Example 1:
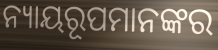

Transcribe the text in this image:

ନ୍ୟାୟରୂପମାନଙ୍କର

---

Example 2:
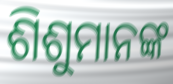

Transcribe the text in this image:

ଶିଶୁମାନଙ୍କ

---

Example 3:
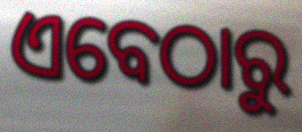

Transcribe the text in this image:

ଏବେଠାରୁ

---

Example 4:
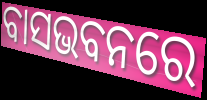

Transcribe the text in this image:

ବାସଭବନରେ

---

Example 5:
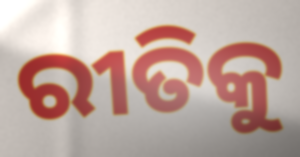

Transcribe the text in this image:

ରୀତିକୁ